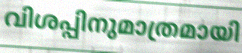
വിശപ്പിനുമാത്രമായി